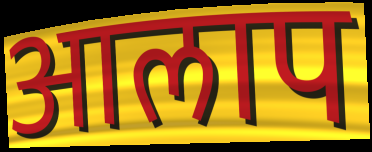
आलाप